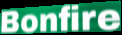
Bonfire